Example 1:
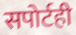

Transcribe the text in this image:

सपोर्टही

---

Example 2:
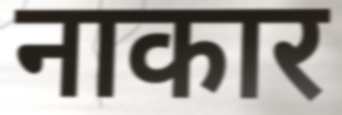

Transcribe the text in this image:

नाकार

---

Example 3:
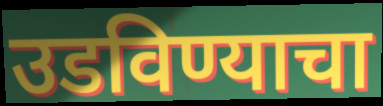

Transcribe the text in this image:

उडविण्याचा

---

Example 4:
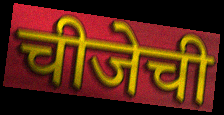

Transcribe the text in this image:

चीजेची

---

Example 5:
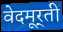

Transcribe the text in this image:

वेदमूर्ती